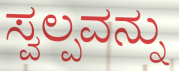
ಸ್ವಲ್ಪವನ್ನು